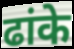
ढांके